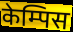
केम्पिस